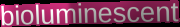
bioluminescent